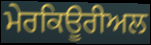
ਮੇਰਕਿਊਰੀਅਲ